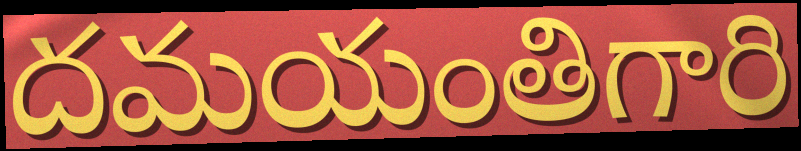
దమయంతిగారి